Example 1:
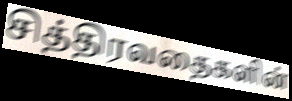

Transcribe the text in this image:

சித்திரவதைகளின்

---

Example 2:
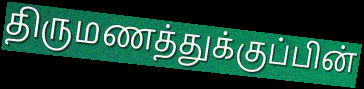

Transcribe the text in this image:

திருமணத்துக்குப்பின்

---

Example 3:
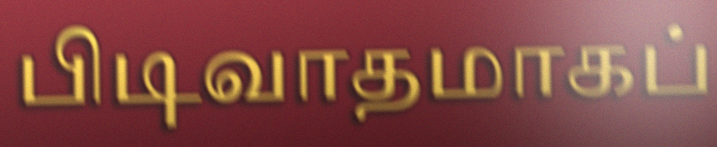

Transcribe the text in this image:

பிடிவாதமாகப்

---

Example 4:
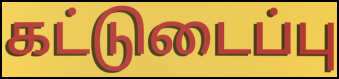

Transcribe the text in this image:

கட்டுடைப்பு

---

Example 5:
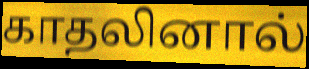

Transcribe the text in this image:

காதலினால்